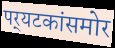
पर्यटकांसमोर